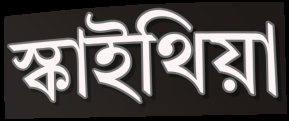
স্কাইথিয়া